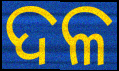
ଦଳ